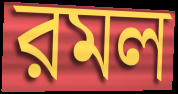
রমল